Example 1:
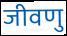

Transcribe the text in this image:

जीवणु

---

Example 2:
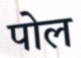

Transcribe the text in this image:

पोल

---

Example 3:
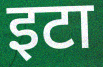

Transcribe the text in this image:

इटा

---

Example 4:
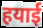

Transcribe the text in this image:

हयाई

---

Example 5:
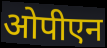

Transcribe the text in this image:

ओपीएन